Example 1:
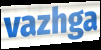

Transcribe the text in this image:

vazhga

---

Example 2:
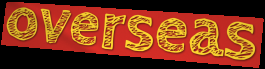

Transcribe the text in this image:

overseas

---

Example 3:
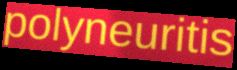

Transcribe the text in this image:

polyneuritis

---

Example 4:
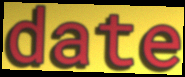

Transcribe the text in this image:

date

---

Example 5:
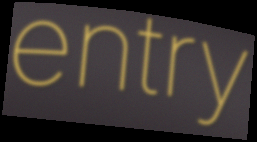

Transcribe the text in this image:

entry